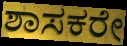
ಶಾಸಕರೇ